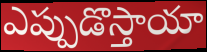
ఎప్పుడొస్తాయా